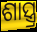
ଶାସ୍ତ୍ର୍ର